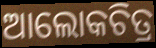
ଆଲୋକଚିତ୍ର